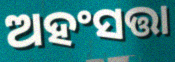
ଅହଂସତ୍ତା